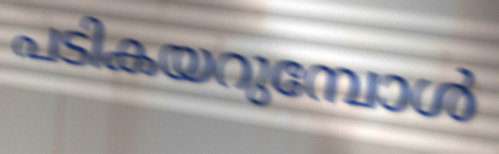
പടികയറുമ്പോൾ